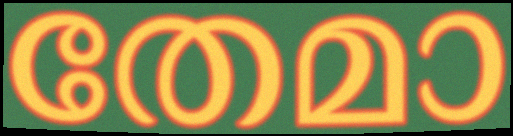
തേമാ